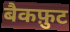
बैकफ़ुट